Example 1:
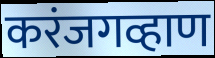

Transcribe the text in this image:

करंजगव्हाण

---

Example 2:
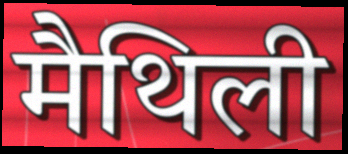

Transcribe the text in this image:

मैथिली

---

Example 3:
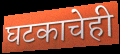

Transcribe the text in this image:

घटकाचेही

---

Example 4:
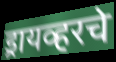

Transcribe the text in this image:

ड्रायव्हरचे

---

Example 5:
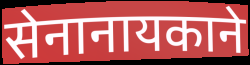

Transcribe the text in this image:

सेनानायकाने